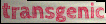
transgenic